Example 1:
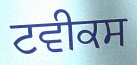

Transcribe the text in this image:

ਟਵੀਕਸ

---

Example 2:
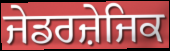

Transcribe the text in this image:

ਜੇਡਰਜ਼ੇਜਿਕ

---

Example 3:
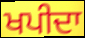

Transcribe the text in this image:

ਖਪੀਦਾ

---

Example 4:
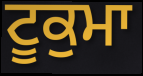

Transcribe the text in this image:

ਟੂਕੁਮਾ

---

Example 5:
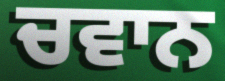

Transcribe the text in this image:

ਚਵਾਨ